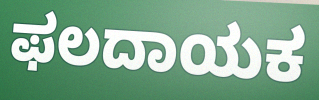
ಫಲದಾಯಕ